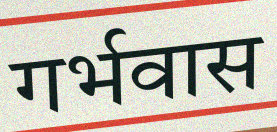
गर्भवास